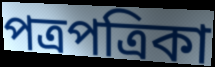
পত্রপত্রিকা